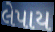
લેપાય